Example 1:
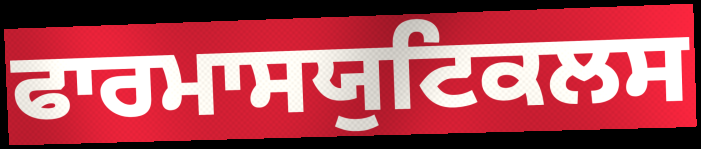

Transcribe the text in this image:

ਫਾਰਮਾਸਯੁਟਿਕਲਸ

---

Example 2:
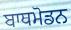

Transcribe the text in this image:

ਬਾਥਮੋਡਨ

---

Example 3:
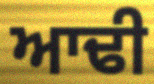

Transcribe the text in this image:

ਆਢੀ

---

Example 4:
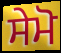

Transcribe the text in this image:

ਸੇਮੋ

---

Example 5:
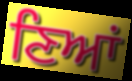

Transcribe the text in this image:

ਣਿਆਂ